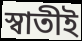
স্বাতীই